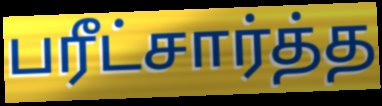
பரீட்சார்த்த